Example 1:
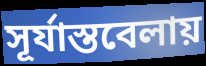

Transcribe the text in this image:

সূর্যাস্তবেলায়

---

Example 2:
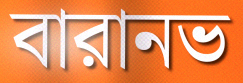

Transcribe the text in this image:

বারানভ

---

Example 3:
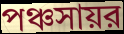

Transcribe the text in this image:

পঞ্চসায়র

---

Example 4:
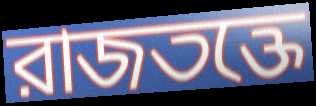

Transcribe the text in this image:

রাজতক্তে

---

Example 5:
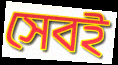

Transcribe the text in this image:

সেবই